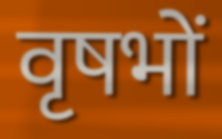
वृषभों